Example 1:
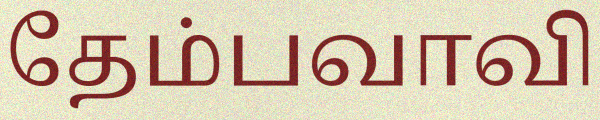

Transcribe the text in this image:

தேம்பவாவி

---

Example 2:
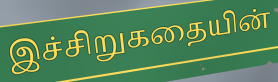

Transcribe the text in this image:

இச்சிறுகதையின்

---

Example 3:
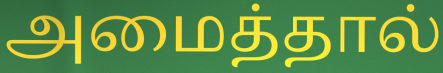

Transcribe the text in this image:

அமைத்தால்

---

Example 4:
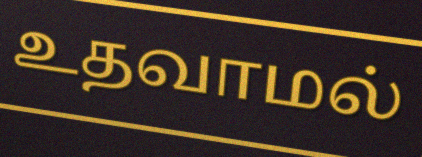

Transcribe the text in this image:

உதவாமல்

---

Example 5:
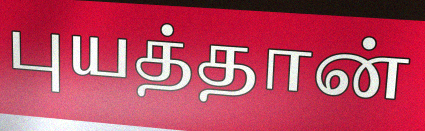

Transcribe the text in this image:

புயத்தான்